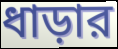
ধাড়ার